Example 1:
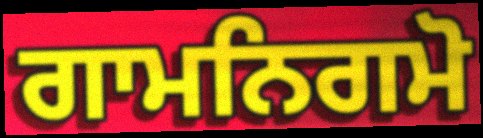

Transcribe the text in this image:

ਗਾਮਨਿਗਮੋ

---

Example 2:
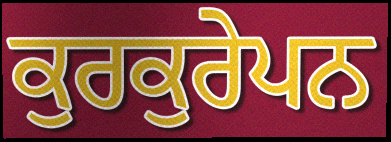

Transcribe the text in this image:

ਕੁਰਕੁਰੇਪਨ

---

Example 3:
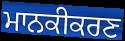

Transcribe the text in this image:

ਮਾਨਕੀਕਰਣ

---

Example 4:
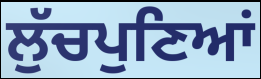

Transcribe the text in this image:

ਲੁੱਚਪੁਣਿਆਂ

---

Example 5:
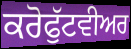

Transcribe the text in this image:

ਕਰੋਫੁੱਟਵੀਅਰ